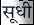
सूधी